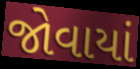
જોવાયાં